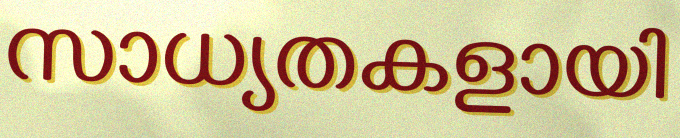
സാധ്യതകളായി